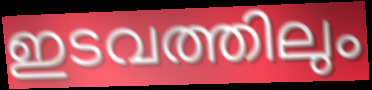
ഇടവത്തിലും